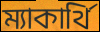
ম্যাকার্থি